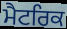
ਮੈਟਰਿਕ